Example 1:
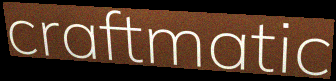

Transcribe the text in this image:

craftmatic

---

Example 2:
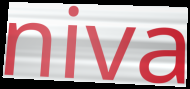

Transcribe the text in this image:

niva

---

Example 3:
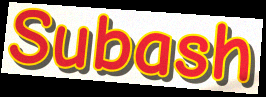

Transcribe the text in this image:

Subash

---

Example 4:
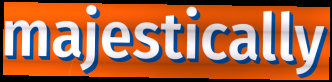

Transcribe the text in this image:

majestically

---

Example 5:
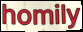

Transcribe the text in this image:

homily